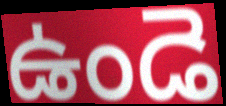
ఉండె